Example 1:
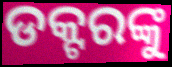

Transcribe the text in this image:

ଡକ୍ଟରଙ୍କୁ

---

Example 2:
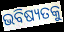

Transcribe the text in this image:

ଭବିଷ୍ୟତକୁ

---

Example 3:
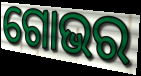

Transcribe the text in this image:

ଗୋଭର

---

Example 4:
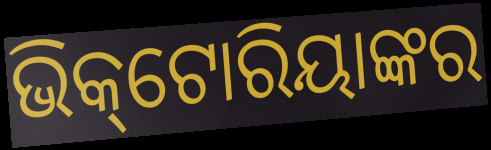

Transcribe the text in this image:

ଭିକ୍‌ଟୋରିୟାଙ୍କର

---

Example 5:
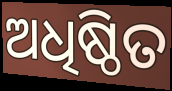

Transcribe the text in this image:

ଅଧିଷ୍ଠିତ